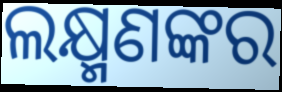
ଲକ୍ଷ୍ମଣଙ୍କର